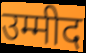
उम्मीद